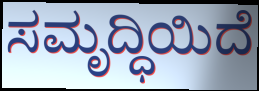
ಸಮೃದ್ಧಿಯಿದೆ